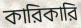
কারিকারি